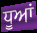
ਧੂਆਂ